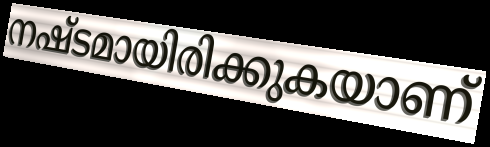
നഷ്ടമായിരിക്കുകയാണ്